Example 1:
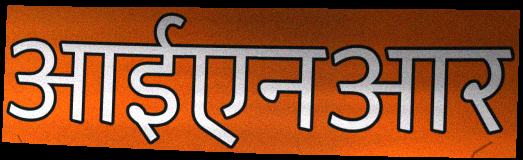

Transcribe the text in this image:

आईएनआर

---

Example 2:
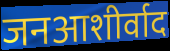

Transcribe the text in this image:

जनआशीर्वाद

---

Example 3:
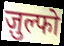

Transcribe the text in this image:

ज़ुल्फो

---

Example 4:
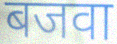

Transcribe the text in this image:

बजवा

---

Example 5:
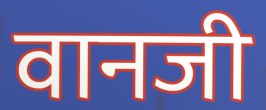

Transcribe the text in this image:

वानजी